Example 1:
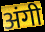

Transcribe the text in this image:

अंगी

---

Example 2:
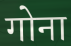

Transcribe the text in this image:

गोना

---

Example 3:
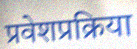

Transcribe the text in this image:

प्रवेशप्रक्रिया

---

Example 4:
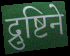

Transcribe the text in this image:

द्रुष्टिने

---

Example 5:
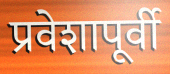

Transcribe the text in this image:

प्रवेशापूर्वी